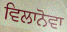
ਵਿਲਾਨੋਵਾ